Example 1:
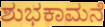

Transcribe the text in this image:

ಶುಭಕಾಮನೆ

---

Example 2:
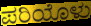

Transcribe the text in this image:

ಪರಿಯೊಳು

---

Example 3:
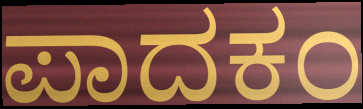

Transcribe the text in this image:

ಪಾದಕಂ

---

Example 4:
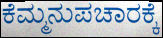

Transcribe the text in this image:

ಕೆಮ್ಮನುಪಚಾರಕ್ಕೆ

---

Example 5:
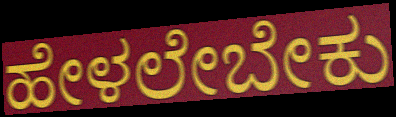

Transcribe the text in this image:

ಹೇಳಲೇಬೇಕು